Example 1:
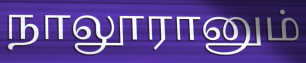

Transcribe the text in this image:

நாலூரானும்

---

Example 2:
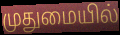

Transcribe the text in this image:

முதுமையில்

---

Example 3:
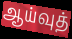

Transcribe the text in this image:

ஆய்வுத்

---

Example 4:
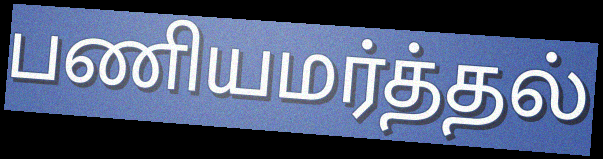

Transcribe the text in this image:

பணியமர்த்தல்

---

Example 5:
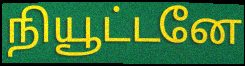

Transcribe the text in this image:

நியூட்டனே